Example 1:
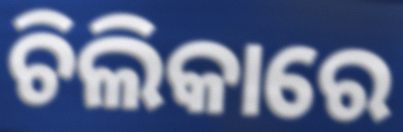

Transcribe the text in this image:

ଚିଲିକାରେ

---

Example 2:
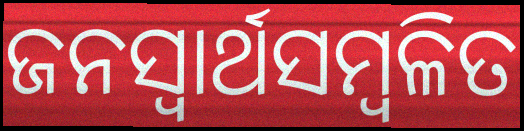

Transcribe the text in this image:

ଜନସ୍ବାର୍ଥସମ୍ବଳିତ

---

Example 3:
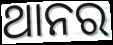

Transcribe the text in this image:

ଥାନର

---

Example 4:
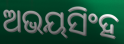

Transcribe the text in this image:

ଅଭୟସିଂହ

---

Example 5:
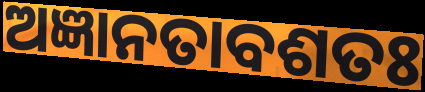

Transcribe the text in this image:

ଅଜ୍ଞାନତାବଶତଃ